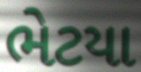
ભેટયા